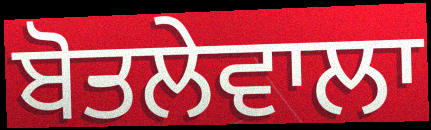
ਬੋਤਲੇਵਾਲਾ